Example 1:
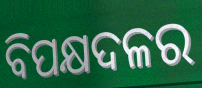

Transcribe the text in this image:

ବିପକ୍ଷଦଳର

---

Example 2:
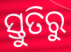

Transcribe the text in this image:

ସ୍ତୁତିରୁ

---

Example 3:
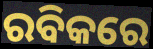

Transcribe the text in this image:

ରବିକରେ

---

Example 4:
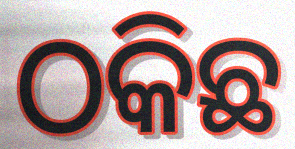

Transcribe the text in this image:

ଠକିଛ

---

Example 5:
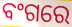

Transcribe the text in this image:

ବଂଗରେ